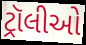
ટ્રૉલીઓ